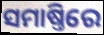
ସମାଷ୍ତିରେ